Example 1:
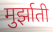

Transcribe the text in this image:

मुर्झाती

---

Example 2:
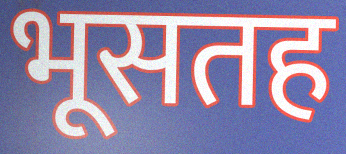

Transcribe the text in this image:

भूसतह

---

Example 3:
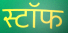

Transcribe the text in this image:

स्टॉफ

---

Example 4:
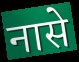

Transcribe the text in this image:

नासे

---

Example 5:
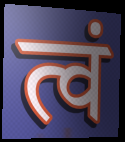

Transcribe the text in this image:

त्वं